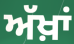
ਅੱਖ਼ਾਂ